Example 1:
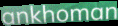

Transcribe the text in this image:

ankhoman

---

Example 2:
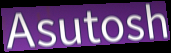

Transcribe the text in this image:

Asutosh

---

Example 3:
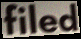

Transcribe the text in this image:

filed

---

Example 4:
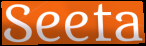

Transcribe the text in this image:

Seeta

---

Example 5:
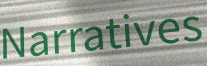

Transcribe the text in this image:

Narratives